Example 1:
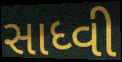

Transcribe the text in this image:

સાધ્વી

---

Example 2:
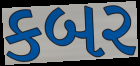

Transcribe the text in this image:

કબર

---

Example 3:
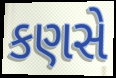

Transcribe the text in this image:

કણસે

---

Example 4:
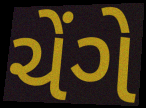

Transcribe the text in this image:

ચેંગે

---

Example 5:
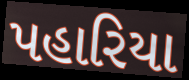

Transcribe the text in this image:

પહારિયા